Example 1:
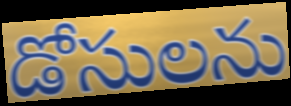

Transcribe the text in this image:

డోసులను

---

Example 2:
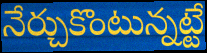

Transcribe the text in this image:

నేర్చుకొంటున్నట్టే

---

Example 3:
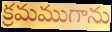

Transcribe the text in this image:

క్రమముగాను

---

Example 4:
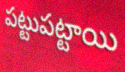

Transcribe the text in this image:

పట్టుపట్టాయి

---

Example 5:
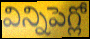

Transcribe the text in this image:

విన్నిపెగ్లో